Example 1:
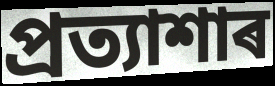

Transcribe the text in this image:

প্ৰত্যাশাৰ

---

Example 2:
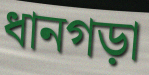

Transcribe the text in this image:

ধানগড়া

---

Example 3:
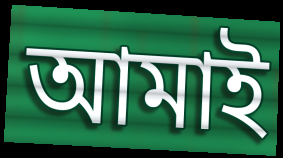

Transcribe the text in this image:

আমাই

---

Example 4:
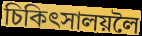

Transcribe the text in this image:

চিকিৎসালয়লৈ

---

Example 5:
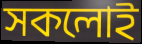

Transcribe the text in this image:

সকলোই